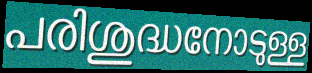
പരിശുദ്ധനോടുള്ള